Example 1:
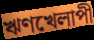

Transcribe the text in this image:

ঋণখেলাপী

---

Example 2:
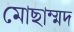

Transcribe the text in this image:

মোছাম্মদ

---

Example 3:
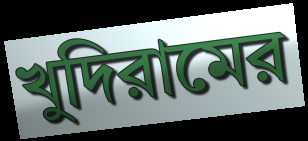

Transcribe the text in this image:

খুদিরামের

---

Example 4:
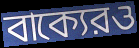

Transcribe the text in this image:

বাক্যেরও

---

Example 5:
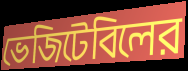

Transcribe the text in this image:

ভেজিটেবিলের